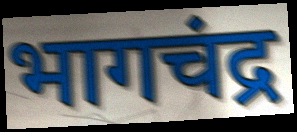
भागचंद्र